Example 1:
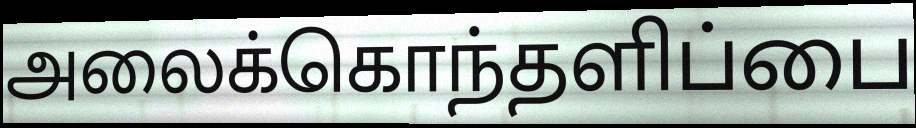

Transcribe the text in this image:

அலைக்கொந்தளிப்பை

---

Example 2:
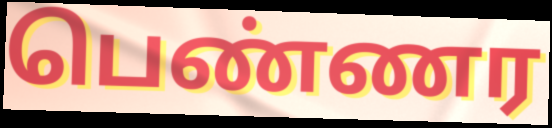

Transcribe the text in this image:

பெண்ணர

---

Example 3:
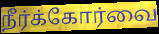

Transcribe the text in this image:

நீர்க்கோர்வை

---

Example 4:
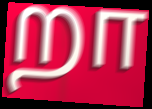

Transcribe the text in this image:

றா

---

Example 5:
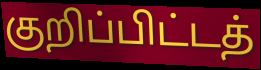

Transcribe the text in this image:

குறிப்பிட்டத்